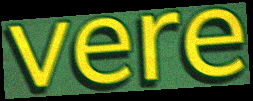
vere